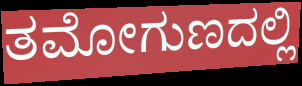
ತಮೋಗುಣದಲ್ಲಿ